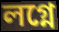
লগ্নে